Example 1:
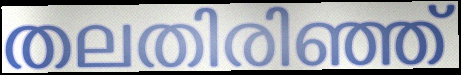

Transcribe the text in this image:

തലതിരിഞ്ഞ്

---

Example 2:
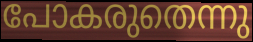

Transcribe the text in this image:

പോകരുതെന്നു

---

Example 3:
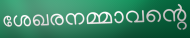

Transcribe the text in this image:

ശേഖരനമ്മാവന്റെ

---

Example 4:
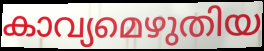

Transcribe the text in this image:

കാവ്യമെഴുതിയ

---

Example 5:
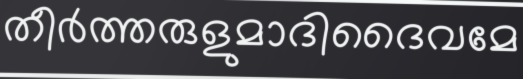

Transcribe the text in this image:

തീർത്തരുളുമാദിദൈവമേ